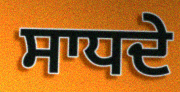
ਸਾਧਦੇ